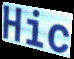
Hic